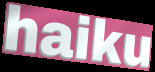
haiku